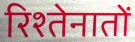
रिश्तेनातों